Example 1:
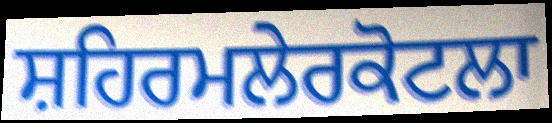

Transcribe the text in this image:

ਸ਼ਹਿਰਮਲੇਰਕੋਟਲਾ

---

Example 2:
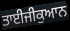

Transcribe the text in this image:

ਤਾਈਜੀਕੁਆਨ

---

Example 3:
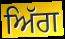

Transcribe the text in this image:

ਅਿੱਗ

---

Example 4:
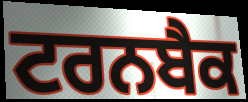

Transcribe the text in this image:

ਟਰਨਬੈਕ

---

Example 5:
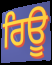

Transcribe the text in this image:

ਰਿਊ